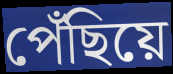
পেঁছিয়ে